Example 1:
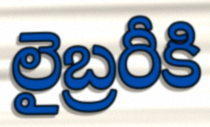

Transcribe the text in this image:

లైబ్రరీకి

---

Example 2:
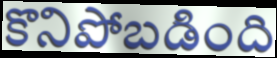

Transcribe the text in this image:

కొనిపోబడింది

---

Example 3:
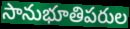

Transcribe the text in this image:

సానుభూతిపరుల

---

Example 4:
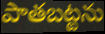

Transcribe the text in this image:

పాతబట్టను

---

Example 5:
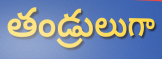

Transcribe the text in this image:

తండ్రులుగా